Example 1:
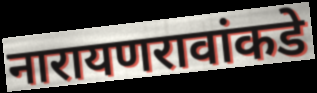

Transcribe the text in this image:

नारायणरावांकडे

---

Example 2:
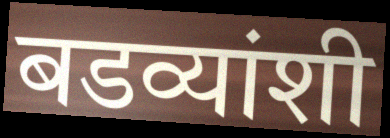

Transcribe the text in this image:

बडव्यांशी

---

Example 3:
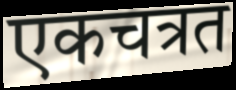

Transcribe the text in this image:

एकचत्रत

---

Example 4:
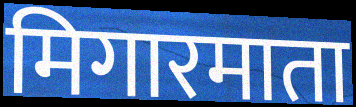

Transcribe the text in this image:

मिगारमाता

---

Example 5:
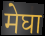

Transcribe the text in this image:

मेघा